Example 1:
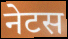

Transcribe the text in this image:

नेटस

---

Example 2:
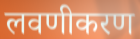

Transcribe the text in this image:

लवणीकरण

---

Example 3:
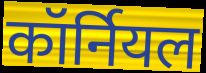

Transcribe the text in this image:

कॉर्नियल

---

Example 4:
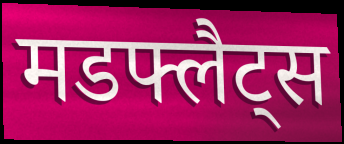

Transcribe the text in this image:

मडफ्लैट्स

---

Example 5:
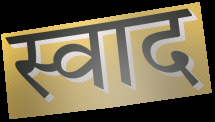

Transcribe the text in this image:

स्वाद